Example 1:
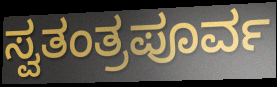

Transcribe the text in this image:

ಸ್ವತಂತ್ರಪೂರ್ವ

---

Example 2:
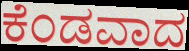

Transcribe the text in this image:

ಕೆಂಡವಾದ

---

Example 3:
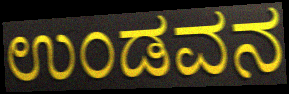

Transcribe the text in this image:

ಉಂಡವನ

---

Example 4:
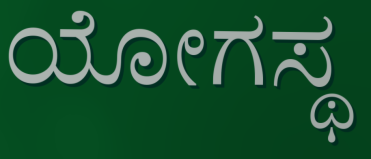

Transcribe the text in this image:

ಯೋಗಸ್ಥ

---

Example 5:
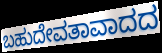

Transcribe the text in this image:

ಬಹುದೇವತಾವಾದದ